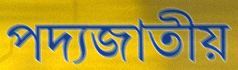
পদ্যজাতীয়